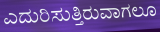
ಎದುರಿಸುತ್ತಿರುವಾಗಲೂ